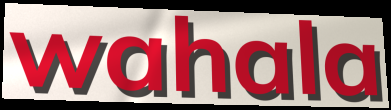
wahala